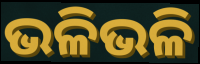
ଭଳିଭଳି